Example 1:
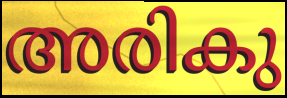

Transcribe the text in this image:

അരികു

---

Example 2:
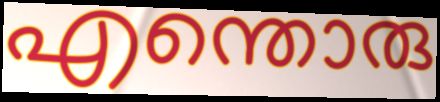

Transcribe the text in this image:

എന്തൊരു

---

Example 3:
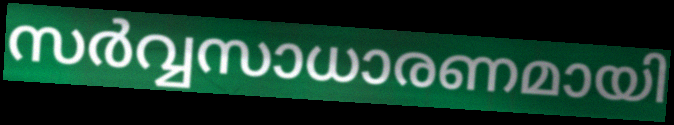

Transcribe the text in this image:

സർവ്വസാധാരണമായി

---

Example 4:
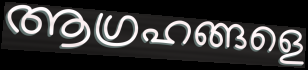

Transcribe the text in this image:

ആഗ്രഹങ്ങളെ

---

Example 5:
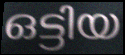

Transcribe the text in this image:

ഒട്ടിയ